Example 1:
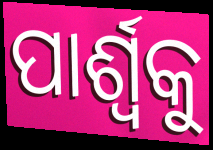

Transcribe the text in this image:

ପାର୍ଶ୍ଵକୁ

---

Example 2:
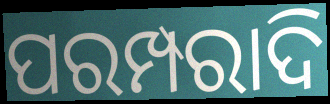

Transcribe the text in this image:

ପରମ୍ପରାଦି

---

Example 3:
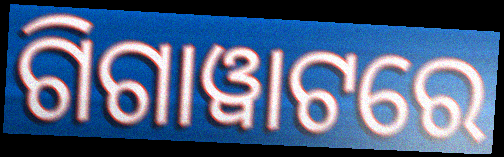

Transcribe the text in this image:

ଗିଗାୱାଟରେ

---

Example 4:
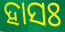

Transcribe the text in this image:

ହାସଃ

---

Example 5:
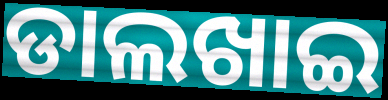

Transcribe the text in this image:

ଡାଲଖାଇ